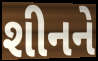
શીનને